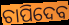
ଚାପିଦେବ